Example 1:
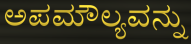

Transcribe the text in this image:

ಅಪಮೌಲ್ಯವನ್ನು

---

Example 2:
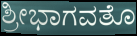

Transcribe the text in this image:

ಶ್ರೀಭಾಗವತೊ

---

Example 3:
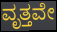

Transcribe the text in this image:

ವೃತ್ತವೇ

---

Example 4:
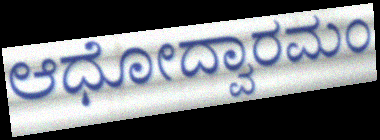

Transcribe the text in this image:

ಆಧೋದ್ವಾರಮಂ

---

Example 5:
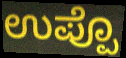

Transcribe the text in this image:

ಉಪ್ಪೊ